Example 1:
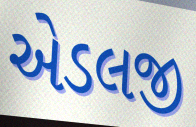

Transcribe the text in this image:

એડલજી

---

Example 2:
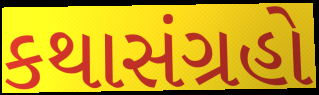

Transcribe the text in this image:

કથાસંગ્રહો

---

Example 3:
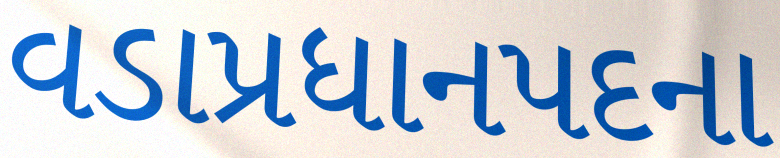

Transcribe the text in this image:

વડાપ્રધાનપદના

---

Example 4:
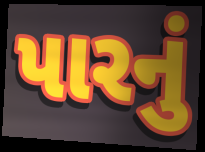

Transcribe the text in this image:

પારનું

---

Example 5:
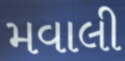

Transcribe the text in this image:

મવાલી